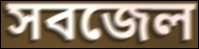
সবজেল